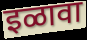
इळावा